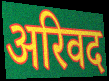
अरिवद